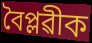
বৈপ্লৱীক